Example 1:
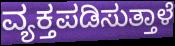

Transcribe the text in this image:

ವ್ಯಕ್ತಪಡಿಸುತ್ತಾಳೆ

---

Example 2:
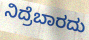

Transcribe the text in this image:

ನಿದ್ರೆಬಾರದು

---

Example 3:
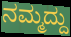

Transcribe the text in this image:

ನಮ್ಮದ್ದು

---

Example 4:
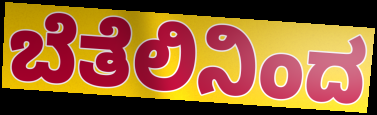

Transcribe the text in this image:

ಬೆತೆಲಿನಿಂದ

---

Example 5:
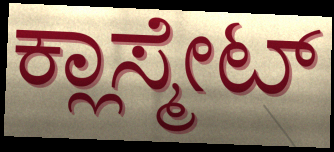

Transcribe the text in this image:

ಕ್ಲಾಸ್ಮೇಟ್